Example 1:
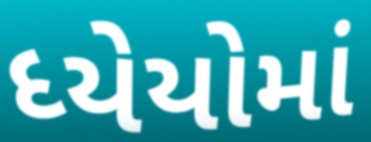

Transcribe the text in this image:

ધ્યેયોમાં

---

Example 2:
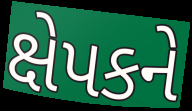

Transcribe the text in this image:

ક્ષેપકને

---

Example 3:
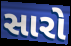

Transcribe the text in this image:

સારો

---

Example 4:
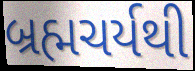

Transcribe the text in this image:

બ્રહ્મચર્યથી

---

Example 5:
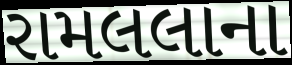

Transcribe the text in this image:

રામલલાના